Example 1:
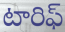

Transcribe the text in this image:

టారిఫ్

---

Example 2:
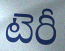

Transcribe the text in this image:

టెరీ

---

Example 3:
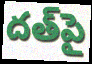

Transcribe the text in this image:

దత్‌పై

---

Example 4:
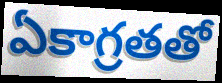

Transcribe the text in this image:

ఏకాగ్రతతో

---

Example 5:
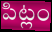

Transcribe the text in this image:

పిట్లం